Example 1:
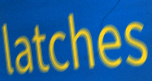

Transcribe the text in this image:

latches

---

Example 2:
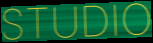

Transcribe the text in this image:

STUDIO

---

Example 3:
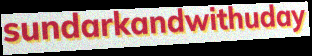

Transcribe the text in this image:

sundarkandwithuday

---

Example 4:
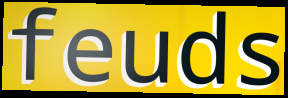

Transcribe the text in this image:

feuds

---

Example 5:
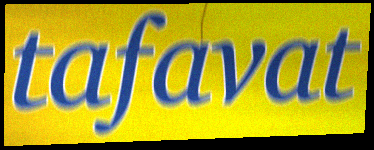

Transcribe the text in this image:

tafavat